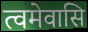
त्वमेवासि